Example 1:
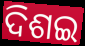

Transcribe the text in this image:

ଦିଶଇ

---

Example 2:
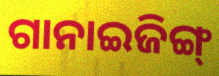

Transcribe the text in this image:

ଗାନାଇଜିଙ୍ଗ୍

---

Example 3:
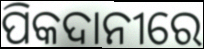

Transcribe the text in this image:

ପିକଦାନୀରେ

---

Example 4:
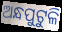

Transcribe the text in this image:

ଅନ୍ଧପୁଟୁଳି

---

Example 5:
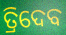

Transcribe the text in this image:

ତ୍ରିଦେବ